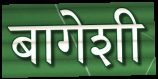
बागेशी